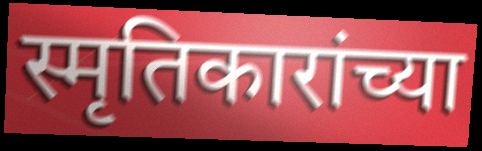
स्मृतिकारांच्या